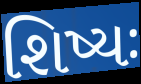
શિષ્યઃ